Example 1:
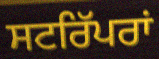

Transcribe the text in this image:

ਸਟਰਿੱਪਰਾਂ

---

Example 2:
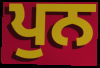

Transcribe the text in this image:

ਪੁਨ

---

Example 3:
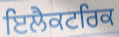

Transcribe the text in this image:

ਇਲੈਕਟਰਿਕ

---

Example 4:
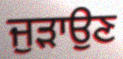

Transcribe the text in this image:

ਜੁੜਾਉਣ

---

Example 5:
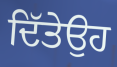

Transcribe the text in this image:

ਦਿੱਤੇਉਹ